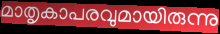
മാതൃകാപരവുമായിരുന്നു